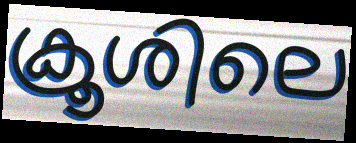
ക്രൂശിലെ